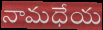
నామధేయ